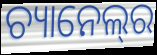
ଚ୍ୟାନେଲ୍‌ର